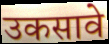
उकसावे